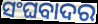
ସଂଘବାଦର